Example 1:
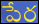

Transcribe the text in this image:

పేర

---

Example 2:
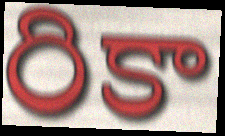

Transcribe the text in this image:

రికా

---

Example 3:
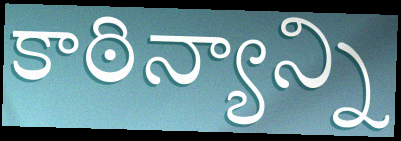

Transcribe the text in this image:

కాఠిన్యాన్ని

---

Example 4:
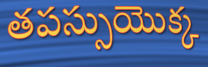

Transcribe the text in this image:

తపస్సుయొక్క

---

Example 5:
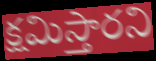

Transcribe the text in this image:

క్షమిస్తారని